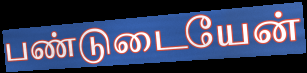
பண்டுடையேன்